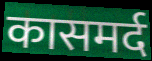
कासमर्द